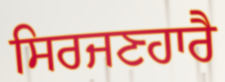
ਸਿਰਜਣਹਾਰੈ